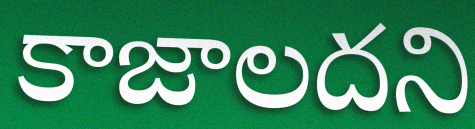
కాజాలదని